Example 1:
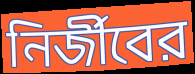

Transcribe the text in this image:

নির্জীবের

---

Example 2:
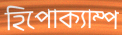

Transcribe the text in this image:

হিপোক্যাম্প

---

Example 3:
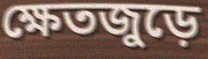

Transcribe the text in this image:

ক্ষেতজুড়ে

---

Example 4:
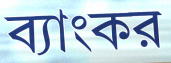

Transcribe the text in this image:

ব্যাংকর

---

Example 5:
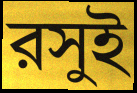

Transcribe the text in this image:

রসুই